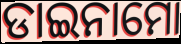
ଡାଇନାମୋ